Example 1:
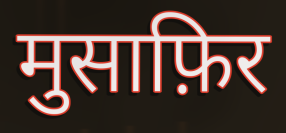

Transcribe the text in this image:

मुसाफ़िर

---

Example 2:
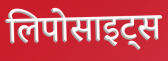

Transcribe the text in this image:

लिपोसाइट्स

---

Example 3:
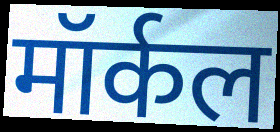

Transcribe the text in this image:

मॉर्कल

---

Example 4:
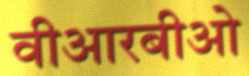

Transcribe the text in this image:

वीआरबीओ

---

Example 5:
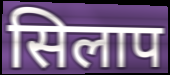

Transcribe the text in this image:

सिलाप